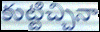
కుట్టిచ్చినా